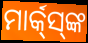
ମାର୍କ୍‌ସ୍‌ଙ୍କ